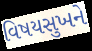
વિષયસુખને